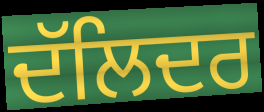
ਦੱਲਿਦਰ